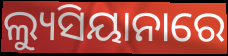
ଲ୍ୟୁସିୟାନାରେ